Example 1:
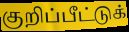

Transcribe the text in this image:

குறிப்பீட்டுக்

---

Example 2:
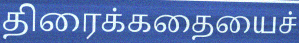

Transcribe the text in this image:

திரைக்கதையைச்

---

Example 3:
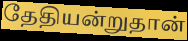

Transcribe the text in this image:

தேதியன்றுதான்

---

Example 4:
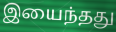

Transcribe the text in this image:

இயைந்தது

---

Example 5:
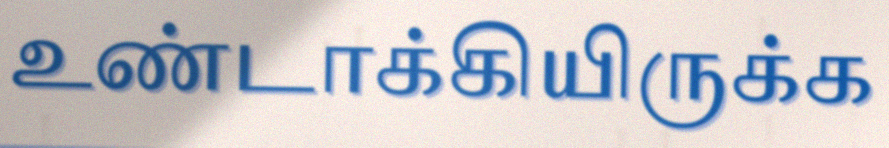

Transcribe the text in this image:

உண்டாக்கியிருக்க